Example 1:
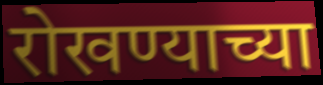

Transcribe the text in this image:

रोखण्याच्या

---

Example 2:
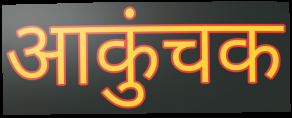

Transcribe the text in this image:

आकुंचक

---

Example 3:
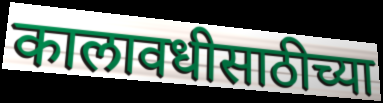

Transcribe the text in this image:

कालावधीसाठीच्या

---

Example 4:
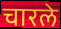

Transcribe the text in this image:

चारले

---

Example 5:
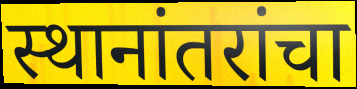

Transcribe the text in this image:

स्थानांतरांचा